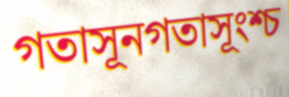
গতাসূনগতাসূংশ্চ